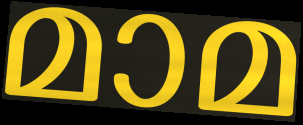
മാമ